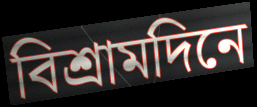
বিশ্রামদিনে